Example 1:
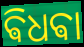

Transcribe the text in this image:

ଵିଧଵା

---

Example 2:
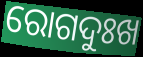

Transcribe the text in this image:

ରୋଗଦୁଃଖ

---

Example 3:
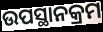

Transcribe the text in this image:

ଉପସ୍ଥାନକ୍ରମ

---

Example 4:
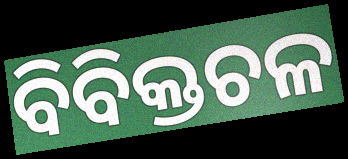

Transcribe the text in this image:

ବିବିକ୍ତଚଳ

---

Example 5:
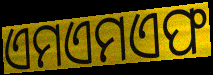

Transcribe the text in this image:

ଏମଏମଏଫ